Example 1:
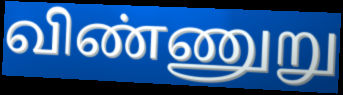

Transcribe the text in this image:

விண்ணுறு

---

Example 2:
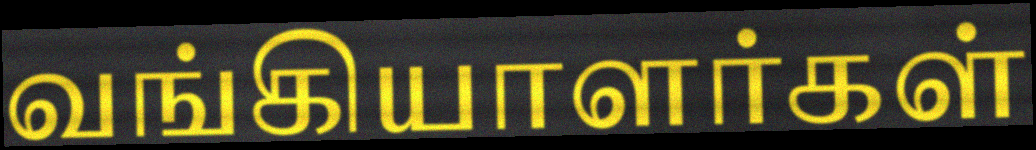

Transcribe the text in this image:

வங்கியாளர்கள்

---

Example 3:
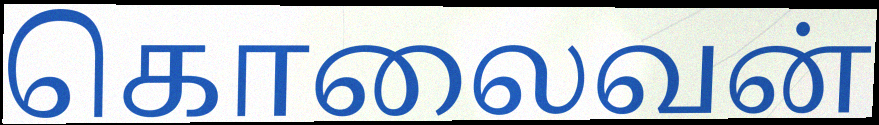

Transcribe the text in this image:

கொலைவன்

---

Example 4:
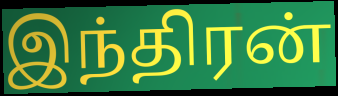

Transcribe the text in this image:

இந்திரன்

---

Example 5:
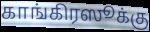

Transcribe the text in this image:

காங்கிரஸூக்கு